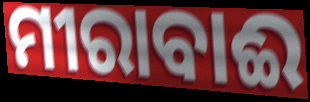
ମୀରାବାଈ